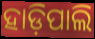
ହାଡ଼ିପାଲି